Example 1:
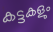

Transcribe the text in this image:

കട്ടകളും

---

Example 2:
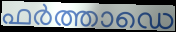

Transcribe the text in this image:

ഫർത്താഡെ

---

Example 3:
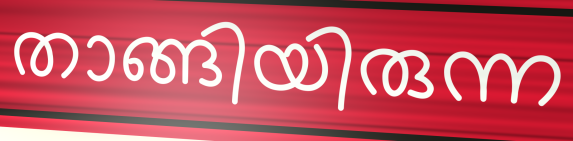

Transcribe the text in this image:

താങ്ങിയിരുന്ന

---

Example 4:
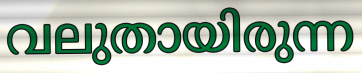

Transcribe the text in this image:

വലുതായിരുന്ന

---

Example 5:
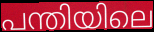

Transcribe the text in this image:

പന്തിയിലെ